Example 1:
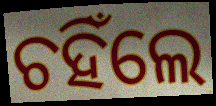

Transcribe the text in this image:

ଚହିଁଲେ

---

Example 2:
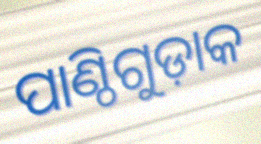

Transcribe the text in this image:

ପାଣ୍ଠିଗୁଡ଼ାକ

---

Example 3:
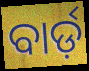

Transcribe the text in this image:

ବାର୍ଡ଼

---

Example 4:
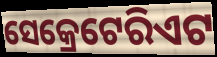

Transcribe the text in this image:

ସେକ୍ରେଟେରିଏଟ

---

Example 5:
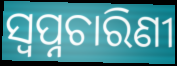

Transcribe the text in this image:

ସ୍ୱପ୍ନଚାରିଣୀ